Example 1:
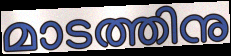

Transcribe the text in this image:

മാടത്തിനു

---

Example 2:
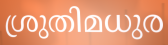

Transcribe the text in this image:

ശ്രുതിമധുര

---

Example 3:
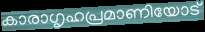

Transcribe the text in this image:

കാരാഗൃഹപ്രമാണിയോട്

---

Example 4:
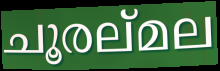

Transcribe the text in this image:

ചൂരല്മല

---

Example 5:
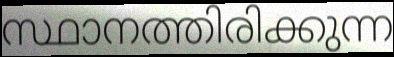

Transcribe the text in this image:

സ്ഥാനത്തിരിക്കുന്ന